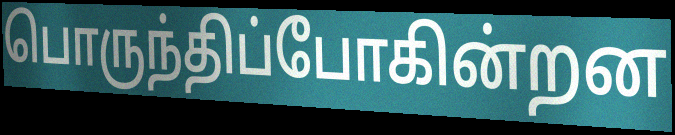
பொருந்திப்போகின்றன